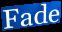
Fade